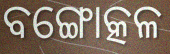
ବଙ୍ଗୋତ୍କଳ